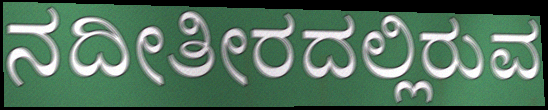
ನದೀತೀರದಲ್ಲಿರುವ